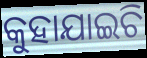
କୁହାଯାଇଚି